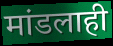
मांडलाही